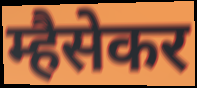
म्हैसेकर